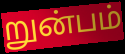
றுன்பம்